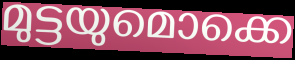
മുട്ടയുമൊക്കെ